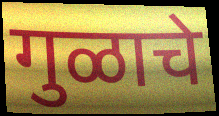
गुळाचे